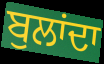
ਬੁਲਾਂਦਾ